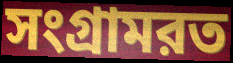
সংগ্রামরত